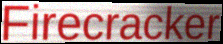
Firecracker